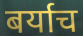
बर्याच